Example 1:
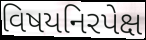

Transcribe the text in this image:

વિષયનિરપેક્ષ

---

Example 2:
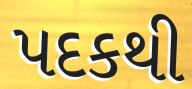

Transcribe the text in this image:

પદકથી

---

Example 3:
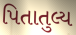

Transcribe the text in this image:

પિતાતુલ્ય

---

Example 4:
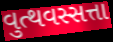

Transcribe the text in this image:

વુત્થવસ્સત્તા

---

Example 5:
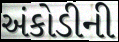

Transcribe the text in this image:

અંકોડીની